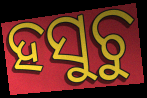
ହସୁଚୁ